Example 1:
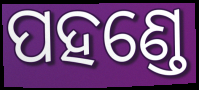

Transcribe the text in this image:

ପହଣ୍ଡେ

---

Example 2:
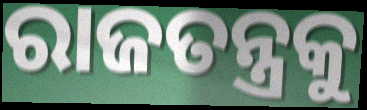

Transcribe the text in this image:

ରାଜତନ୍ତ୍ରକୁ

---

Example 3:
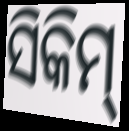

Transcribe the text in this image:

ସିକିମ୍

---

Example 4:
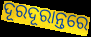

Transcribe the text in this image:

ଦୂରଦୂରାନ୍ତରେ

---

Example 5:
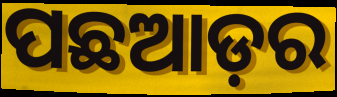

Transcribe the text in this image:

ପଛଆଡ଼ର